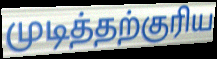
முடித்தற்குரிய